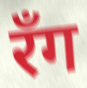
रॅंग